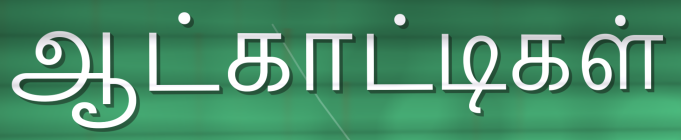
ஆட்காட்டிகள்